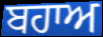
ਬਹਾਅ